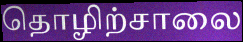
தொழிற்சாலை